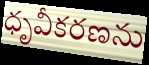
ధృవీకరణను